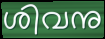
ശിവനു